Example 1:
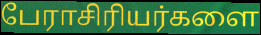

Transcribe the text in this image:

பேராசிரியர்களை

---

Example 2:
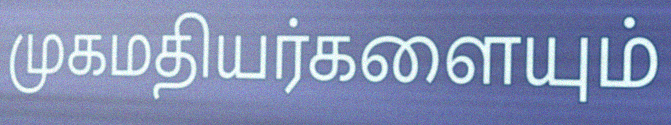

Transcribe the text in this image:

முகமதியர்களையும்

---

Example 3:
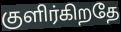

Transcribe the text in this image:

குளிர்கிறதே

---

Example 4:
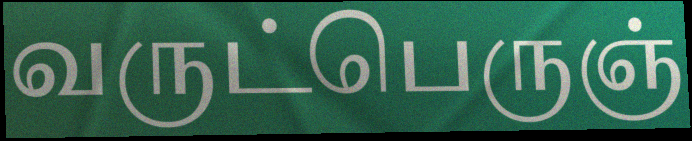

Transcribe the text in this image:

வருட்பெருஞ்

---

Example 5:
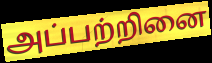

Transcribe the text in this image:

அப்பற்றினை